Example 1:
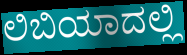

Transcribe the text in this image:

ಲಿಬಿಯಾದಲ್ಲಿ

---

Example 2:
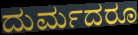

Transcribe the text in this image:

ದುರ್ಮದರೂ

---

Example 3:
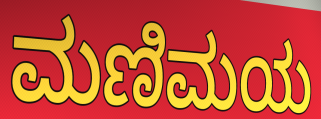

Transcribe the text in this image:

ಮಣಿಮಯ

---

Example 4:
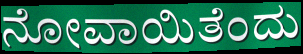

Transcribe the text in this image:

ನೋವಾಯಿತೆಂದು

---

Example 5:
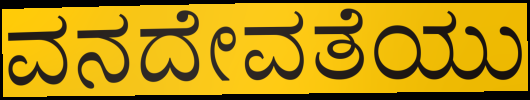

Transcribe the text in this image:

ವನದೇವತೆಯು